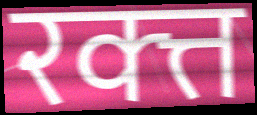
रक्त्त